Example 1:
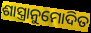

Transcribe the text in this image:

ଶାସ୍ତ୍ରାନୁମୋଦିତ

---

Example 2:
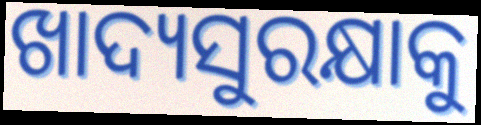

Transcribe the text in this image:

ଖାଦ୍ୟସୁରକ୍ଷାକୁ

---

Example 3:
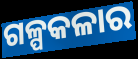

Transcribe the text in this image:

ଗଳ୍ପକଳାର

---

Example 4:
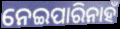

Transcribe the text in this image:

ନେଇପାରିନାହଁ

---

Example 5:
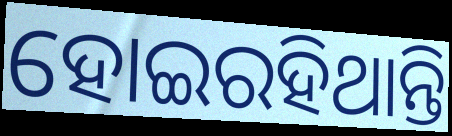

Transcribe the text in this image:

ହୋଇରହିଥାନ୍ତି